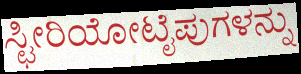
ಸ್ಟೀರಿಯೋಟೈಪುಗಳನ್ನು